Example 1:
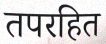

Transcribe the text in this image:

तपरहित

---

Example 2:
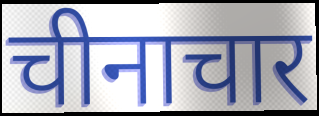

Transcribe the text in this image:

चीनाचार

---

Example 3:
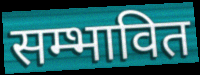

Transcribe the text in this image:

सम्भावित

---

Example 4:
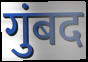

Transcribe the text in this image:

गुंबद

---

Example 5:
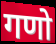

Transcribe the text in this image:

गणो